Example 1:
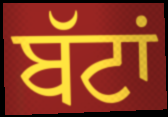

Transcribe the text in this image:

ਬੱਟਾਂ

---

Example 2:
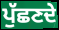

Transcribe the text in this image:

ਪੁੱਛਣਦੇ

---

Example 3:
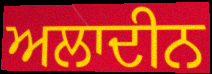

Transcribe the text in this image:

ਅਲਾਦੀਨ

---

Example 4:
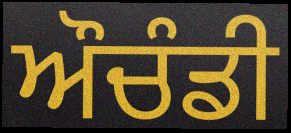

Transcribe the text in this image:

ਔਚੰਡੀ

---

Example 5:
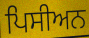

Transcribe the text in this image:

ਪਿਸੀਅਨ